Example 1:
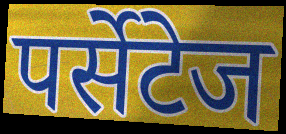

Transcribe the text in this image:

पर्सेटेज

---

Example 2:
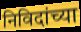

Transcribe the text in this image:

निविदांच्या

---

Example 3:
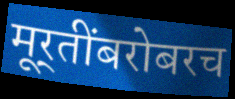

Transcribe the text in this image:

मूर्तींबरोबरच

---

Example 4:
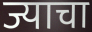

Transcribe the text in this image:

ज्याचा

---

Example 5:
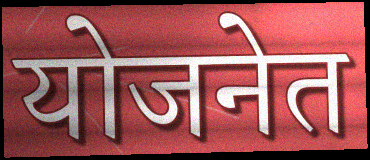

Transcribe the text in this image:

योजनेत